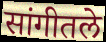
सांगीतले